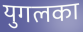
युगलका